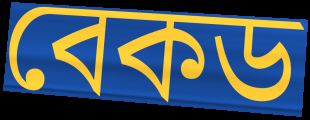
বেকড